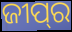
ଜୀପ୍‌ର